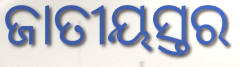
ଜାତୀୟସ୍ତର